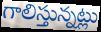
గాలిస్తున్నట్లు